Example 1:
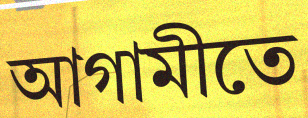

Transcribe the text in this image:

আগামীতে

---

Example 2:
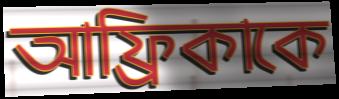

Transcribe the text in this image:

আফ্রিকাকে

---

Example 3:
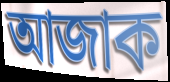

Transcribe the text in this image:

আজাক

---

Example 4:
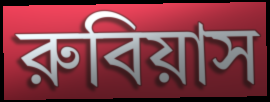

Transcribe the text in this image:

রুবিয়াস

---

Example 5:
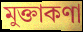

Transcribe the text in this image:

মুক্তাকণা